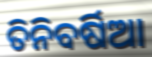
ତିନିବର୍ଷିଆ